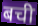
बची